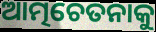
ଆତ୍ମଚେତନାକୁ